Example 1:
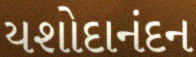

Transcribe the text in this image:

યશોદાનંદન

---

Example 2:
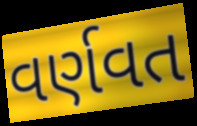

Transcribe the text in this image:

વર્ણવત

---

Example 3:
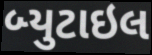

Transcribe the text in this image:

બ્યુટાઇલ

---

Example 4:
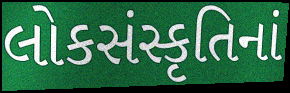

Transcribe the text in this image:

લોકસંસ્કૃતિનાં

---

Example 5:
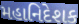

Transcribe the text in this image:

મહાનિદેશક